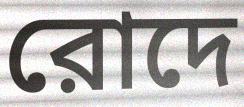
রোদে